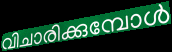
വിചാരിക്കുമ്പോൾ